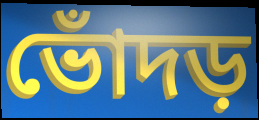
ভোঁদড়